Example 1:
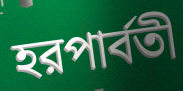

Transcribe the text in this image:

হরপার্বতী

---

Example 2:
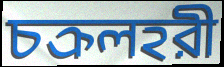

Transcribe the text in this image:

চক্রলহরী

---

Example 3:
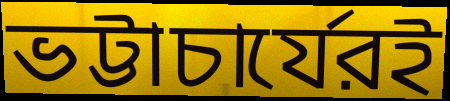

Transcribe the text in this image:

ভট্টাচার্যেরই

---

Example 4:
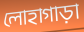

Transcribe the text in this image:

লোহাগাড়া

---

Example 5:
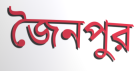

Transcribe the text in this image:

জৈনপুর